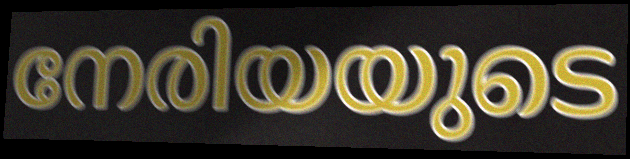
നേരിയയുടെ